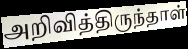
அறிவித்திருந்தாள்